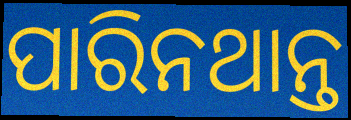
ପାରିନଥାନ୍ତ